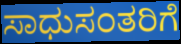
ಸಾಧುಸಂತರಿಗೆ